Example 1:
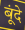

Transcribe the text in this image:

बूंदे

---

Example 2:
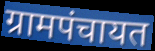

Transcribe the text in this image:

ग्रामपंचायत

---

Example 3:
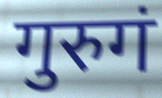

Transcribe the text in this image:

गुरुगं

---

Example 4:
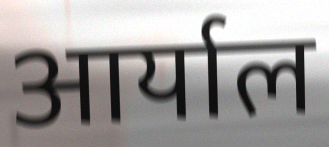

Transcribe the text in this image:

आर्याल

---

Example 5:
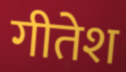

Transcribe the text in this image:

गीतेश